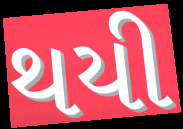
થયી